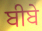
ਬੀਬੇ